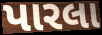
પારલા